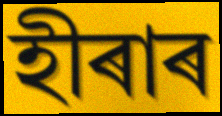
হীৰাৰ